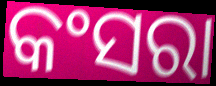
କଂସରା